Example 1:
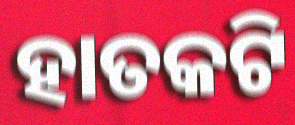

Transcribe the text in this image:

ହାତକଟି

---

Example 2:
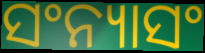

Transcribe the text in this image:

ସଂନ୍ୟାସଂ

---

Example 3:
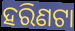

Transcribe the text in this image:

ହରିଣଟା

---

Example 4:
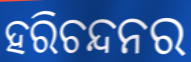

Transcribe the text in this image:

ହରିଚନ୍ଦନର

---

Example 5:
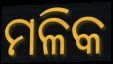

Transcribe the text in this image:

ମଳିକ